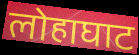
लोहाघाट